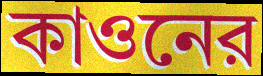
কাওনের